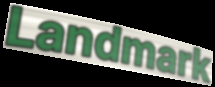
Landmark